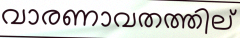
വാരണാവതത്തില്